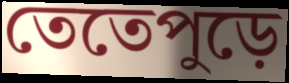
তেতেপুড়ে